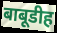
बाबूडीह